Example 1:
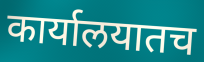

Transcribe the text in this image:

कार्यालयातच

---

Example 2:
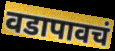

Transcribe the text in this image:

वडापावचं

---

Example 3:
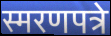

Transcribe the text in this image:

स्मरणपत्रे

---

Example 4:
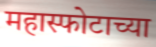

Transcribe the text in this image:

महास्फोटाच्या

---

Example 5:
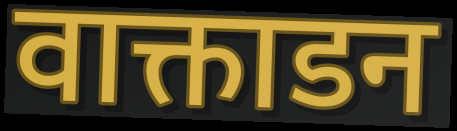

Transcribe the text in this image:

वाक्ताडन